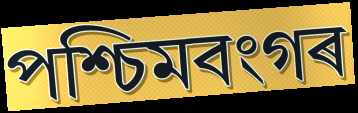
পশ্চিমবংগৰ